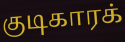
குடிகாரக்